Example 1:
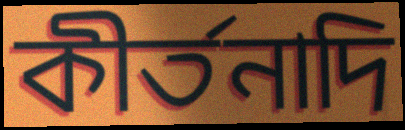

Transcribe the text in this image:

কীর্তনাদি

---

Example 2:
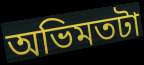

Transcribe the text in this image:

অভিমতটা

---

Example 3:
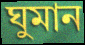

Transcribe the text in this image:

ঘুমান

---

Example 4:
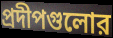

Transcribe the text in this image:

প্রদীপগুলোর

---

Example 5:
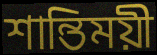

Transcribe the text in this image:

শান্তিময়ী